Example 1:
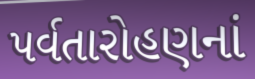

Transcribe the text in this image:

પર્વતારોહણનાં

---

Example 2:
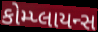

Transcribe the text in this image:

કોમ્પ્લાયન્સ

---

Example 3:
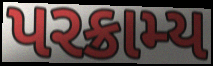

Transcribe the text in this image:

પરક્રામ્ય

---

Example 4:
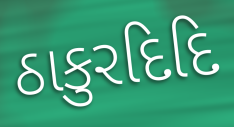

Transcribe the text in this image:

ઠાકુરદિદિ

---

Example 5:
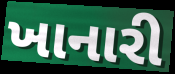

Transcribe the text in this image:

ખાનારી